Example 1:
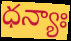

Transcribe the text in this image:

ధన్యాః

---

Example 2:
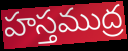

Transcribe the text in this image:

హస్తముద్ర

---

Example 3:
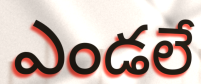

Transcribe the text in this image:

ఎండలే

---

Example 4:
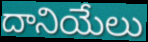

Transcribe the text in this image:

దానియేలు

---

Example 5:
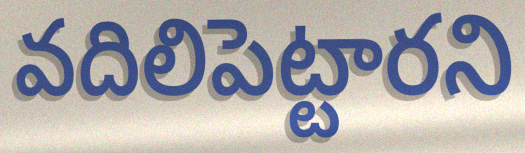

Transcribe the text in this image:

వదిలిపెట్టారని